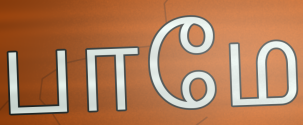
பாமே